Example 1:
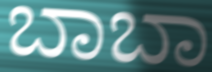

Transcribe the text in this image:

ಬಾಬಾ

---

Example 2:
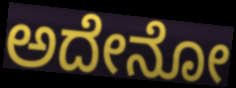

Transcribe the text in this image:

ಅದೇನೋ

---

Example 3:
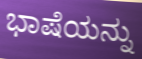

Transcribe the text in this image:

ಭಾಷೆಯನ್ನು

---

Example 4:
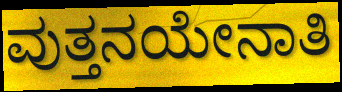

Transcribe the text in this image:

ವುತ್ತನಯೇನಾತಿ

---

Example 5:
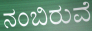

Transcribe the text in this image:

ನಂಬಿರುವೆ